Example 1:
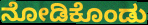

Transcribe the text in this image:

ನೋಡಿಕೊಂಡು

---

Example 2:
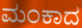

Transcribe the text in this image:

ಮಂಕಾದ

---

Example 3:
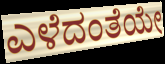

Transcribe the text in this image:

ಎಳೆದಂತೆಯೇ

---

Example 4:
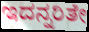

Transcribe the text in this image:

ಇದನ್ನರಿತೇ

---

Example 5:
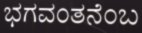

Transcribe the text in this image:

ಭಗವಂತನೆಂಬ